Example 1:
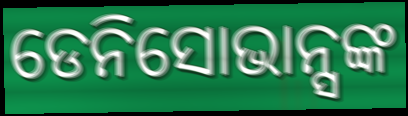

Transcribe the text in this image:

ଡେନିସୋଭାନ୍ସଙ୍କ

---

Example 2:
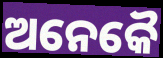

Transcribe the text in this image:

ଅନେକୈ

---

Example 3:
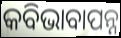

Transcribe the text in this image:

କବିଭାବାପନ୍ନ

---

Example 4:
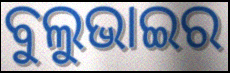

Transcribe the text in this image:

ବୁଲୁଭାଇର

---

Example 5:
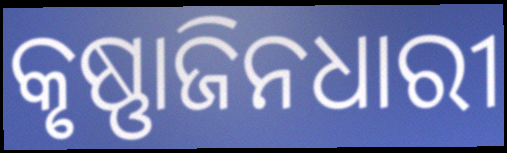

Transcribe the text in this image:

କୃଷ୍ଣାଜିନଧାରୀ